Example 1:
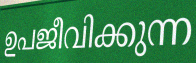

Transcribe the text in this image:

ഉപജീവിക്കുന്ന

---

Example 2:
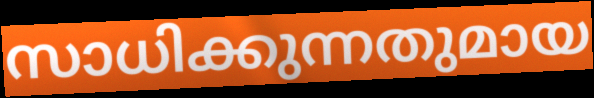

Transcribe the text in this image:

സാധിക്കുന്നതുമായ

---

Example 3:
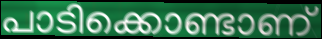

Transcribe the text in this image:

പാടിക്കൊണ്ടാണ്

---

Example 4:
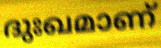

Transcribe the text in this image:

ദുഃഖമാണ്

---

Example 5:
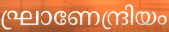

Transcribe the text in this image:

ഘ്രാണേന്ദ്രിയം